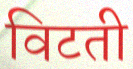
विटती